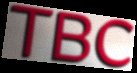
TBC